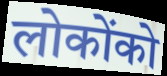
लोकोंको